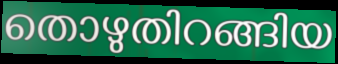
തൊഴുതിറങ്ങിയ